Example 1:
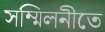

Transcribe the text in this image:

সম্মিলনীতে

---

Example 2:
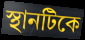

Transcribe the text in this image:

স্থানটিকে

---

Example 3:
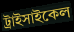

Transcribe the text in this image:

ট্রাইসাইকেল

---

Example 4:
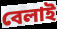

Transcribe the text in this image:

বেলাই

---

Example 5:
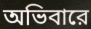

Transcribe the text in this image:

অভিবারে